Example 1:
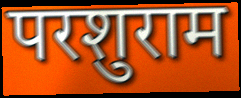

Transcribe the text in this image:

परशुराम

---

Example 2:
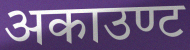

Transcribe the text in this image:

अकाउण्ट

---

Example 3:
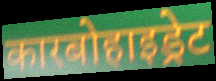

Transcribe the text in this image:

कारबोहाइड्रेट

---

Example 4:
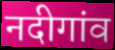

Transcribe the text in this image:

नदीगांव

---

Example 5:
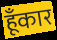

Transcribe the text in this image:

हूँकार